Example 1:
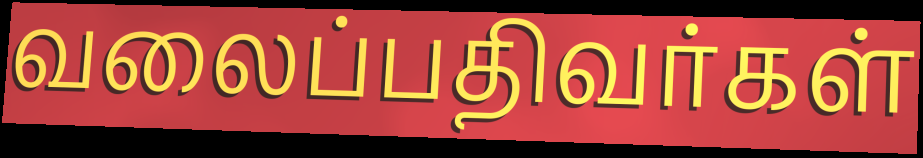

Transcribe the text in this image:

வலைப்பதிவர்கள்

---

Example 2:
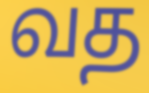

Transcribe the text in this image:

வத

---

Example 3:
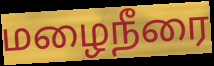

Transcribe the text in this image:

மழைநீரை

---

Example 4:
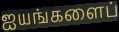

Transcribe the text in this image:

ஐயங்களைப்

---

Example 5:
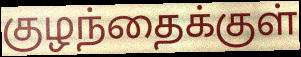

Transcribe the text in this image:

குழந்தைக்குள்